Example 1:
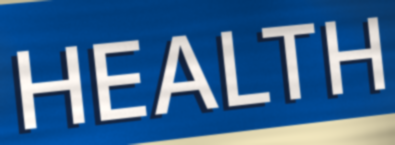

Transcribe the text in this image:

HEALTH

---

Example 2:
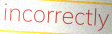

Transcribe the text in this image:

incorrectly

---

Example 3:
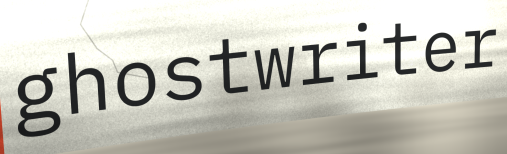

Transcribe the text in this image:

ghostwriter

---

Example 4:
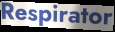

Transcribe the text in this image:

Respirator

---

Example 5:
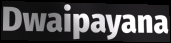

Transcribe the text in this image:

Dwaipayana